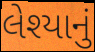
લેશ્યાનું